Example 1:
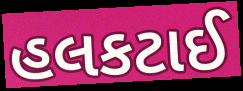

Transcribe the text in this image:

હલકટાઈ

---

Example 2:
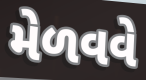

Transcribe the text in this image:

મેળવવે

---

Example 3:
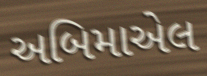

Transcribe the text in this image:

અબિમાએલ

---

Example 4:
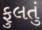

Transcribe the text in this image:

ફુલતું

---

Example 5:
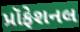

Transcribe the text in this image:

પ્રૉફેશનલ